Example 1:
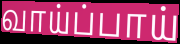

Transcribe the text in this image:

வாய்ப்பாய்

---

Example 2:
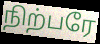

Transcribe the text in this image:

நிற்பரே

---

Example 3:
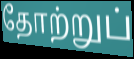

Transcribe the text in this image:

தோற்றுப்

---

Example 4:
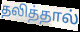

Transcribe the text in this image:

தலித்தால்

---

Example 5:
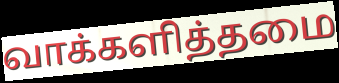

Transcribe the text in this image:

வாக்களித்தமை